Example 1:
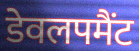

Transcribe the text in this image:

डेवलपमैंट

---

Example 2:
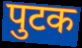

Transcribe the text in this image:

पुटक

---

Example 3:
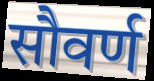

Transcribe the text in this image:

सौवर्ण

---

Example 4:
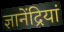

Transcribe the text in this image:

ज्ञानेंद्रियां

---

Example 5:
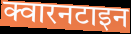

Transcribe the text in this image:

क्वारनटाइन